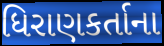
ધિરાણકર્તાના